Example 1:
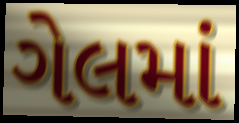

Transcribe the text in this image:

ગેલમાં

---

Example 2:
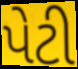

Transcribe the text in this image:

પેટી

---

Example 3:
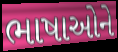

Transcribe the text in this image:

ભાષાઓને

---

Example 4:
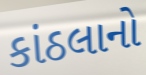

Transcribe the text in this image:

કાંઠલાનો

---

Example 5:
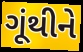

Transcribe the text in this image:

ગૂંથીને